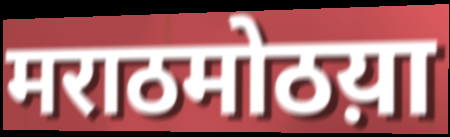
मराठमोठय़ा